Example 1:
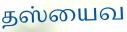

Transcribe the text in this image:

தஸ்யைவ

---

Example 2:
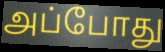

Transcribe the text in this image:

அப்போது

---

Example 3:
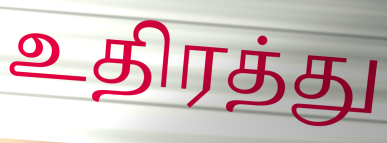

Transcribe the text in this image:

உதிரத்து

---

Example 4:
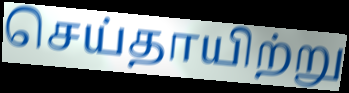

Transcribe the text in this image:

செய்தாயிற்று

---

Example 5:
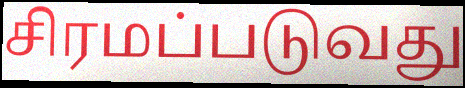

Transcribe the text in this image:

சிரமப்படுவது